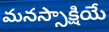
మనస్సాక్షియే